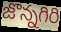
జొన్నగిరి